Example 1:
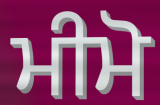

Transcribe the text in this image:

ਮੀਮੋ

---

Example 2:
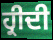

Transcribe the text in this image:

ਹ੍ਰੀਦੀ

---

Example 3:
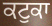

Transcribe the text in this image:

ਕਟੁਕਾ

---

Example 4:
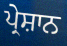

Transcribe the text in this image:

ਪ੍ਰੇਸ਼ਾਨ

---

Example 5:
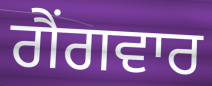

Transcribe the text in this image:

ਗੈਂਗਵਾਰ